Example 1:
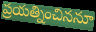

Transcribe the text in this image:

ప్రయత్నించిననూ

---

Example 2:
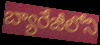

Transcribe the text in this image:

బ్యారేజీలోని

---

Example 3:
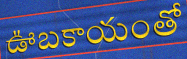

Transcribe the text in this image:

ఊబకాయంతో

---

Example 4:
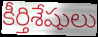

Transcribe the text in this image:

కీర్తిశేషులు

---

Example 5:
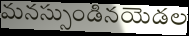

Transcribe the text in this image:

మనస్సుండినయెడల